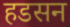
हडसन